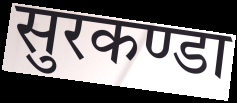
सुरकण्डा